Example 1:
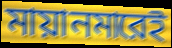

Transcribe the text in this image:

মায়ানমারেই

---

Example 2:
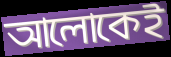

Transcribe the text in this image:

আলোকেই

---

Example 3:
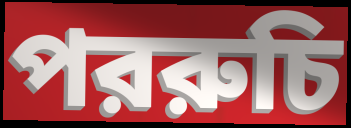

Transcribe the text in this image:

পররুচি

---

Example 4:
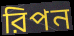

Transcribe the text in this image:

রিপন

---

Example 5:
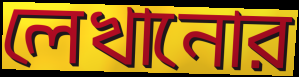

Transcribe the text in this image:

লেখানোর